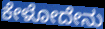
ಕೇಳೋದೇನು